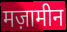
मज़ामीन